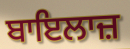
ਬਾਇਲਾਜ਼